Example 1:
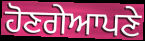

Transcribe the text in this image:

ਹੋਣਗੇਆਪਣੇ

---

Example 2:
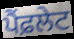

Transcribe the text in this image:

ਪੈਂਫ਼ਲੇਟ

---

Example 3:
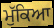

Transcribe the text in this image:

ਮੁੱਕਿਆ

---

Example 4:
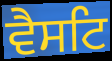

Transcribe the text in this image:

ਵੈਸਟਿ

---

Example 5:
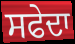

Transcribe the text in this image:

ਸਫੇਦਾ